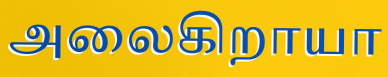
அலைகிறாயா